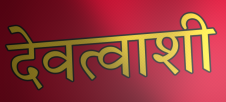
देवत्वाशी